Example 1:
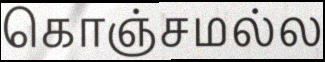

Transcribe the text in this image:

கொஞ்சமல்ல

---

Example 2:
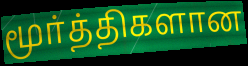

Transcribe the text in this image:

மூர்த்திகளான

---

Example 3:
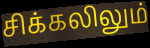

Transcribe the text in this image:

சிக்கலிலும்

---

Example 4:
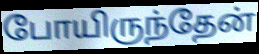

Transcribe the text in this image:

போயிருந்தேன்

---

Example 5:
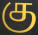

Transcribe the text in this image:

கு